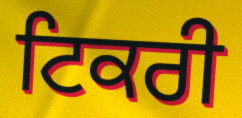
ਟਿਕਰੀ